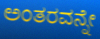
ಅಂತರವನ್ನೇ